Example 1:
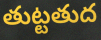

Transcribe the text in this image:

తుట్టతుద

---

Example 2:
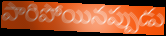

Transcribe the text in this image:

పారిపోయినప్పుడు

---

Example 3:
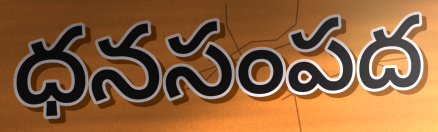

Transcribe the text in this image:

ధనసంపద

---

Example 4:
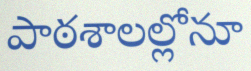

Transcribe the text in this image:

పాఠశాలల్లోనూ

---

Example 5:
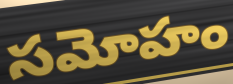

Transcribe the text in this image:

సమోహం